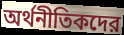
অর্থনীতিকদের